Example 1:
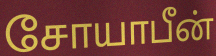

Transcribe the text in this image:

சோயாபீன்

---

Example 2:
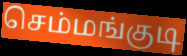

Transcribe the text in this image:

செம்மங்குடி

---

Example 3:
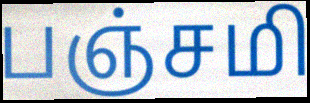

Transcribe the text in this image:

பஞ்சமி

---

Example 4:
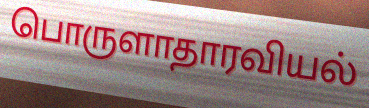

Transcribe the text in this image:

பொருளாதாரவியல்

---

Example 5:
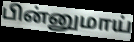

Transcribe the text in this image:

பின்னுமாய்